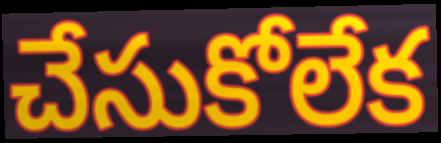
చేసుకోలేక